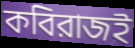
কবিরাজই